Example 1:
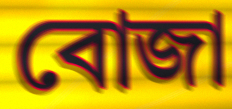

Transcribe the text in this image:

বোজা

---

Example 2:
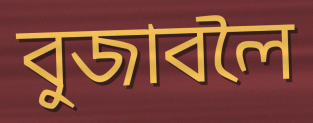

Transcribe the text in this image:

বুজাবলৈ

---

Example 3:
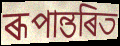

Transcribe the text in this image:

ৰূপান্তৰিত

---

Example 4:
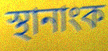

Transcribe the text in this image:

স্থানাংক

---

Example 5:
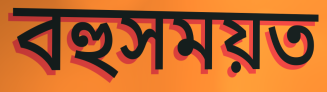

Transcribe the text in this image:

বহুসময়ত